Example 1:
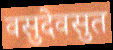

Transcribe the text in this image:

वसुदेवसुत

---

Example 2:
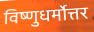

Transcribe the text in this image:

विष्णुधर्मोत्तर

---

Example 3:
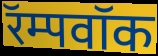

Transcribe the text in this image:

रॅम्पवॉक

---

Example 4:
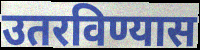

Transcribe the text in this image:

उतरविण्यास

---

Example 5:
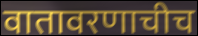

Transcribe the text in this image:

वातावरणाचीच